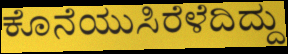
ಕೊನೆಯುಸಿರೆಳೆದಿದ್ದು